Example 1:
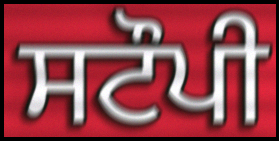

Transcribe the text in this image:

ਸਟੌਪੀ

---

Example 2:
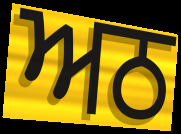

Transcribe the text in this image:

ਅਠ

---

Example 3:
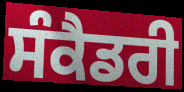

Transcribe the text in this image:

ਸੰਕੈਡਰੀ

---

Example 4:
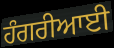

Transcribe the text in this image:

ਹੰਗਰੀਆਈ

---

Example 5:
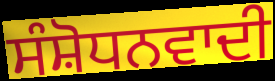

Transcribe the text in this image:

ਸੰਸ਼ੋਧਨਵਾਦੀ